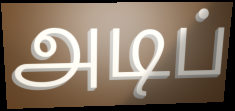
அடிப்